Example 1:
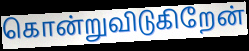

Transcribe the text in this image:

கொன்றுவிடுகிறேன்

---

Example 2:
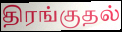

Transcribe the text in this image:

திரங்குதல்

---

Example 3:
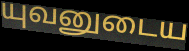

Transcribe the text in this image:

யுவனுடைய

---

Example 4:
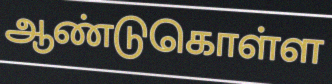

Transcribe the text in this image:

ஆண்டுகொள்ள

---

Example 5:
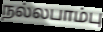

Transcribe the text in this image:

நல்லபாம்பு